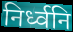
निर्ध्वनि